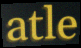
atle